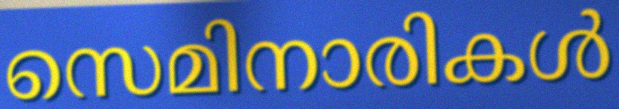
സെമിനാരികൾ